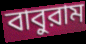
বাবুরাম